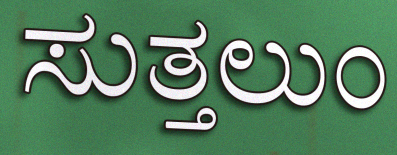
ಸುತ್ತಲುಂ